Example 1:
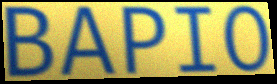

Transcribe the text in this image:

BAPIO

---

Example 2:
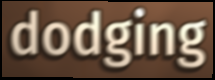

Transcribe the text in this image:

dodging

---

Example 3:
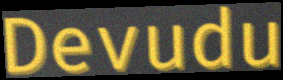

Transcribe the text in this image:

Devudu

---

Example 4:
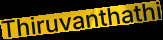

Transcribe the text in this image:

Thiruvanthathi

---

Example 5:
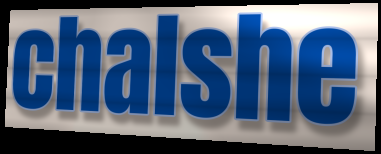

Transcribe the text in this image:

chalshe